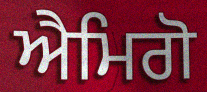
ਐਮਿਗੋ